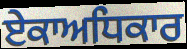
ਏਕਾਅਧਿਕਾਰ